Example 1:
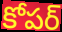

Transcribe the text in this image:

కోపర్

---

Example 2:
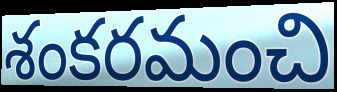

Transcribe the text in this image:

శంకరమంచి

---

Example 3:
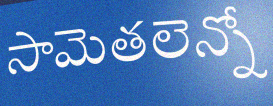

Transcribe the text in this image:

సామెతలెన్నో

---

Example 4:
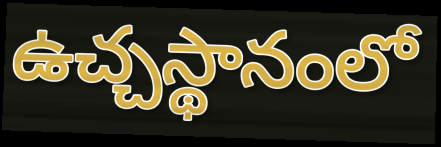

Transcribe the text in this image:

ఉచ్చస్థానంలో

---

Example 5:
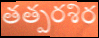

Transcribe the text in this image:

తత్పరశిర